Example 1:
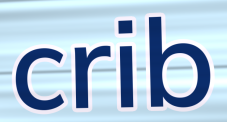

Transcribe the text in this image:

crib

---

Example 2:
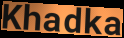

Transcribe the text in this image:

Khadka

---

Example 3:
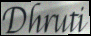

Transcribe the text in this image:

Dhruti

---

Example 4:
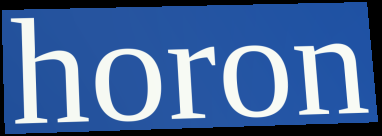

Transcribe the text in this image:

horon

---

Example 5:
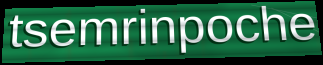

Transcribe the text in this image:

tsemrinpoche